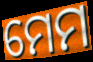
ମେମ